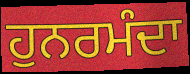
ਹੁਨਰਮੰਦਾ